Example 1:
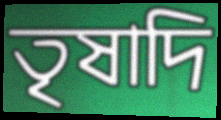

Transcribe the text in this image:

তৃষাদি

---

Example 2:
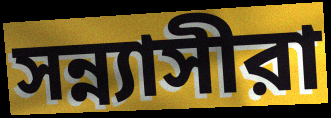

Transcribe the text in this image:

সন্ন্যাসীরা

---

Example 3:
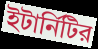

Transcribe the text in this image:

ইটার্নিটির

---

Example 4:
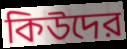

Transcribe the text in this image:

কিউদের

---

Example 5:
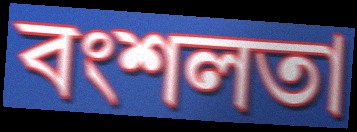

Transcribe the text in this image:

বংশলতা